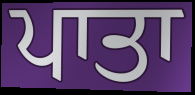
ਪਾਤਾ